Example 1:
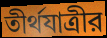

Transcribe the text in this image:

তীর্থযাত্রীর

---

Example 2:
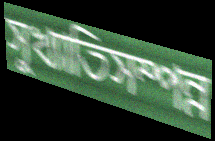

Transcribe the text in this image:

সুখ্যাতিসম্পন্ন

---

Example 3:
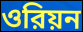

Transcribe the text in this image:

ওরিয়ন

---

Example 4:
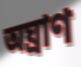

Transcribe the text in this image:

অঘ্রাণ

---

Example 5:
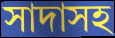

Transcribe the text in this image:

সাদাসহ